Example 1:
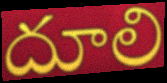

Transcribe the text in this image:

దూలి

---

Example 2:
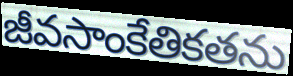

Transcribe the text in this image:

జీవసాంకేతికతను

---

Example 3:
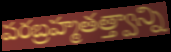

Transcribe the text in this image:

పరబ్రహ్మతత్త్వాన్ని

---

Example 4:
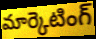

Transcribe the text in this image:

మార్కెటింగ్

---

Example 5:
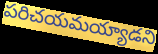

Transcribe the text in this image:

పరిచయమయ్యాడని